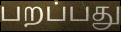
பறப்பது